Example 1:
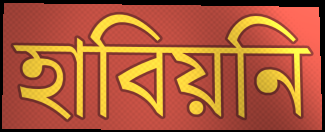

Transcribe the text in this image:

হাবিয়নি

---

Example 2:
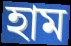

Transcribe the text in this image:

হাম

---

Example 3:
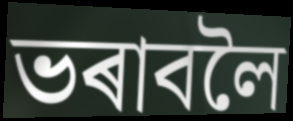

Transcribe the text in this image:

ভৰাবলৈ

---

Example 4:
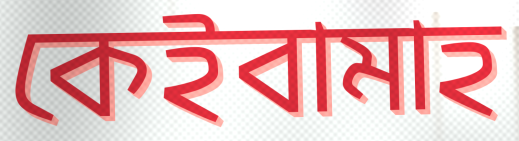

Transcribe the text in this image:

কেইবামাহ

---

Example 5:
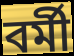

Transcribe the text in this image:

বৰ্মী